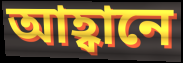
আহ্বানে